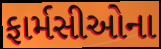
ફાર્મસીઓના